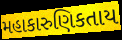
મહાકારુણિકતાય